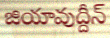
జియావుద్దీన్